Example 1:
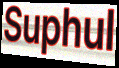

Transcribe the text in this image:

Suphul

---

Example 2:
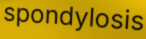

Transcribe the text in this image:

spondylosis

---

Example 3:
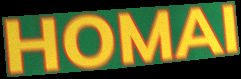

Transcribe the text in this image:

HOMAI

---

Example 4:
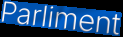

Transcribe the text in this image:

Parliment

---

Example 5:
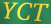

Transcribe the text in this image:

YCT